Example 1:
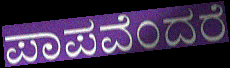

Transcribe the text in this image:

ಪಾಪವೆಂದರೆ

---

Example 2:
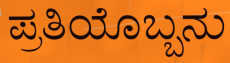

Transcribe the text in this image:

ಪ್ರತಿಯೊಬ್ಬನು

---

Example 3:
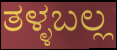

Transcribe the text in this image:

ತಳ್ಳಬಲ್ಲ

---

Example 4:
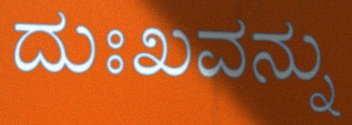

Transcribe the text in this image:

ದುಃಖವನ್ನು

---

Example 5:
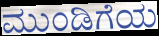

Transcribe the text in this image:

ಮುಂಡಿಗೆಯ